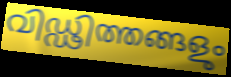
വിഡ്ഢിത്തങ്ങളും